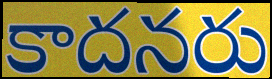
కాదనరు